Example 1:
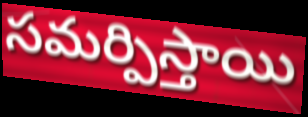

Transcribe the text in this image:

సమర్పిస్తాయి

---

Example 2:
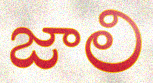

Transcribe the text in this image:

జాలి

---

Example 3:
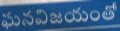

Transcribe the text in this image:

ఘనవిజయంతో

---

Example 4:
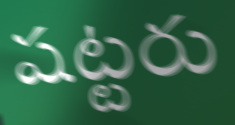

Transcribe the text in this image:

షట్టరు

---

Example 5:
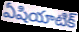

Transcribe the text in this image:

ఏషియాటిక్